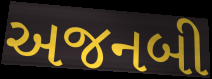
અજનબી